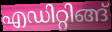
എഡിറ്റിങ്ങ്